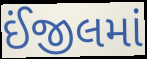
ઈંજીલમાં